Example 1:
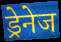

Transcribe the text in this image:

ड्रेनेज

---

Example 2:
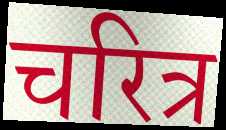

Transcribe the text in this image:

चरित्र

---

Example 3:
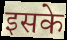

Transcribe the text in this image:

इसके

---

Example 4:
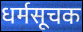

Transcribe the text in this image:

धर्मसूचक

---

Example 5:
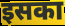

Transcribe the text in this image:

इसका